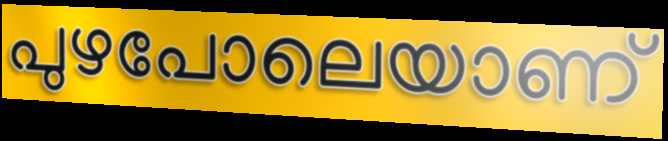
പുഴപോലെയാണ്